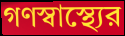
গণস্বাস্থ্যের